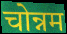
चोन्नम